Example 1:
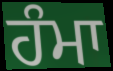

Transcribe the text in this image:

ਹੰਮਾ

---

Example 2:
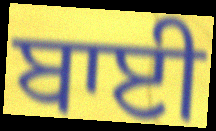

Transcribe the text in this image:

ਬਾਈ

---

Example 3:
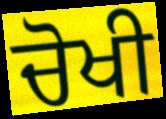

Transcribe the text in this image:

ਚੋਖੀ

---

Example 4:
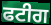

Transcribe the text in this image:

ਫਟੀਗ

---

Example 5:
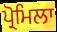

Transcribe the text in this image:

ਪ੍ਰੋਮਿਲਾ